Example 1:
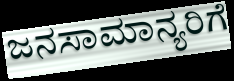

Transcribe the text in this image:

ಜನಸಾಮಾನ್ಯರಿಗೆ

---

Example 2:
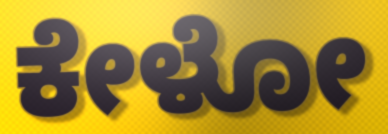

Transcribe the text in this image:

ಕೇಳೋ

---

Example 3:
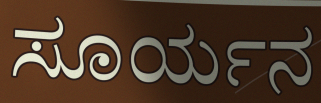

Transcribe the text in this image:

ಸೂರ್ಯನ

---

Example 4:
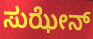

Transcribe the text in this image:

ಸುಝೇನ್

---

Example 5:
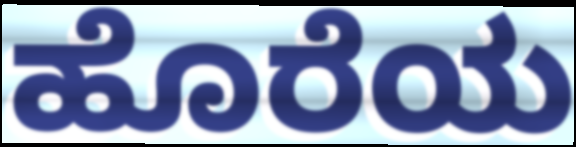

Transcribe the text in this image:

ಹೊರೆಯ